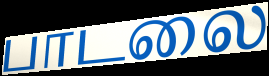
பாடலை